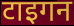
टाइगन